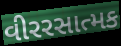
વીરરસાત્મક